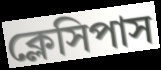
ক্লেসিপাস